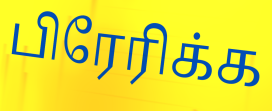
பிரேரிக்க